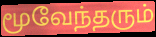
மூவேந்தரும்